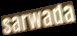
sarwada